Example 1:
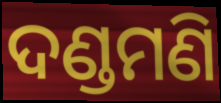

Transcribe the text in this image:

ଦଣ୍ଡମଣି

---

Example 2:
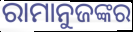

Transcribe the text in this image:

ରାମାନୁଜଙ୍କର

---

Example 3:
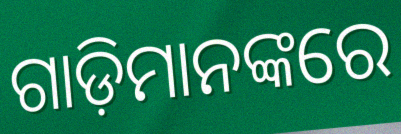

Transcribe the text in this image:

ଗାଡ଼ିମାନଙ୍କରେ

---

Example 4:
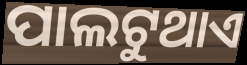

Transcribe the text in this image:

ପାଲଟୁଥାଏ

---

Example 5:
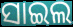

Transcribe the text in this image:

ସାଇଲ